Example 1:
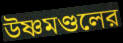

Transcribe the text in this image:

উষ্ণমণ্ডলের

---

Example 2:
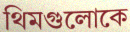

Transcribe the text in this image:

থিমগুলোকে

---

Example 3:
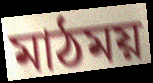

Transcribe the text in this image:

মাঠময়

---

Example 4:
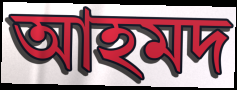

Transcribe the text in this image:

আহমদ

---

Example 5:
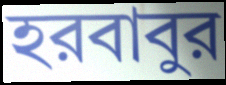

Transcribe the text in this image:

হরবাবুর